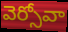
వెర్సోవా